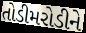
તોડીમરોડીને